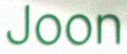
Joon